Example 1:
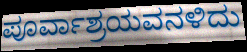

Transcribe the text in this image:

ಪೂರ್ವಾಶ್ರಯವನಳಿದು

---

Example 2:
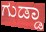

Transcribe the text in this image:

ಗುಡ್ಡಾ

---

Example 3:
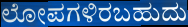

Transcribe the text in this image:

ಲೋಪಗಳಿರಬಹುದು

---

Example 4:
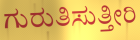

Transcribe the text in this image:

ಗುರುತಿಸುತ್ತೀರಿ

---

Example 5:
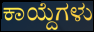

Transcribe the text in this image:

ಕಾಯ್ದೆಗಳು